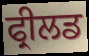
ਫ੍ਰੀਲਡ